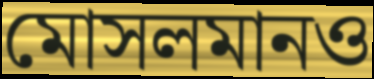
মোসলমানও